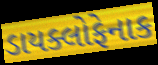
ડાયક્લોફેનાક